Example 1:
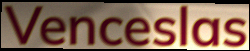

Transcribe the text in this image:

Venceslas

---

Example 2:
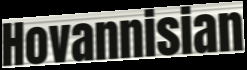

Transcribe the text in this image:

Hovannisian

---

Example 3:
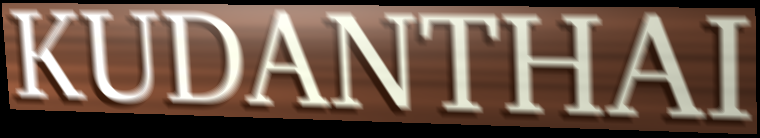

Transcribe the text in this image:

KUDANTHAI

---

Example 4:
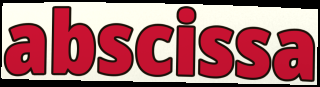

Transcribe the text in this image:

abscissa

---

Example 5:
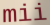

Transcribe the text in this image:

mii